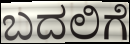
ಬದಲಿಗೆ